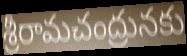
శ్రీరామచంద్రునకు